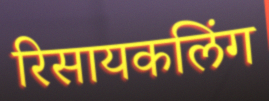
रिसायकलिंग